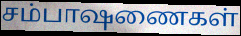
சம்பாஷணைகள்